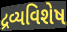
દ્રવ્યવિશેષ